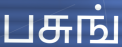
பசுங்